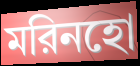
মরিনহো